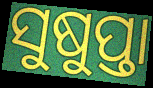
ସୁଷୁପ୍ତା